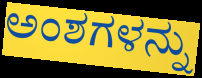
ಅಂಶಗಳನ್ನು